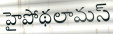
హైపోథలామస్